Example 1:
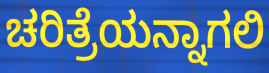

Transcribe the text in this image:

ಚರಿತ್ರೆಯನ್ನಾಗಲಿ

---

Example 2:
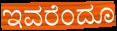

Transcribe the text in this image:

ಇವರೆಂದೂ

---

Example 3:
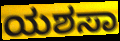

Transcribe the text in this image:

ಯಶಸಾ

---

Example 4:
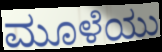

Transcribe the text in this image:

ಮೂಳೆಯು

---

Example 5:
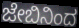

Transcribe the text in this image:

ಜೇಬಿನಿಂದ